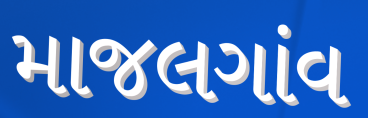
માજલગાંવ